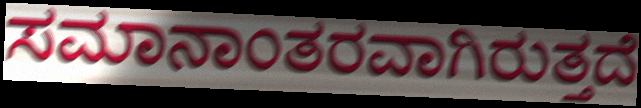
ಸಮಾನಾಂತರವಾಗಿರುತ್ತದೆ